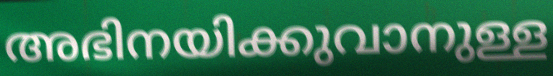
അഭിനയിക്കുവാനുള്ള